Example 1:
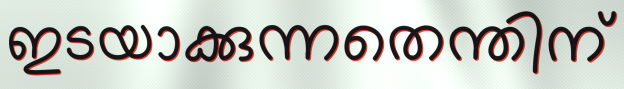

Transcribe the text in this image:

ഇടയാക്കുന്നതെന്തിന്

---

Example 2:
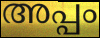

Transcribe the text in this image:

അപ്പം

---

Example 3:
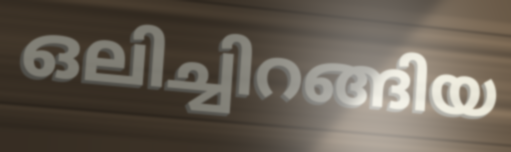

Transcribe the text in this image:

ഒലിച്ചിറങ്ങിയ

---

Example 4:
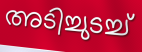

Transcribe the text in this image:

അടിച്ചുടച്ച്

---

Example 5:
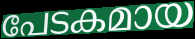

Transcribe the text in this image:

പേടകമായ